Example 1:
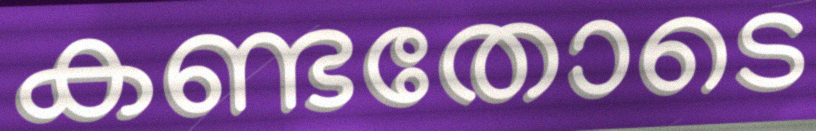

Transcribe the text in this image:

കണ്ടതോടെ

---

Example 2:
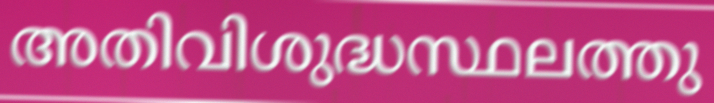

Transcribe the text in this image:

അതിവിശുദ്ധസ്ഥലത്തു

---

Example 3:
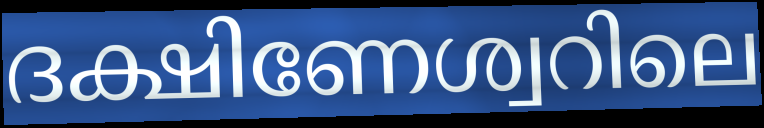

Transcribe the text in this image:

ദക്ഷിണേശ്വറിലെ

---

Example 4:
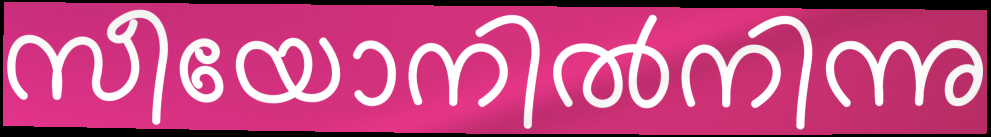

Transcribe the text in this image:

സീയോനിൽനിന്നു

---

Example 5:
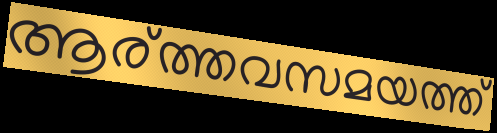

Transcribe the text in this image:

ആര്ത്തവസമയത്ത്